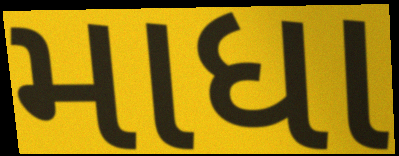
માધા